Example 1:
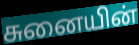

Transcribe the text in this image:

சுனையின்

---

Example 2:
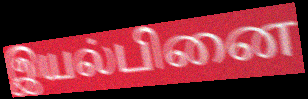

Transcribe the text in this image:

இயல்பினை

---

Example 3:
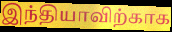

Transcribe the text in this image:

இந்தியாவிற்காக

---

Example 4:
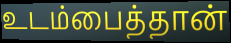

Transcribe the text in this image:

உடம்பைத்தான்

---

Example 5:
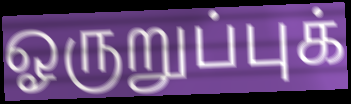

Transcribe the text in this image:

ஓருறுப்புக்